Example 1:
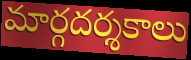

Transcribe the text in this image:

మార్గదర్శకాలు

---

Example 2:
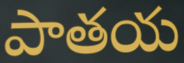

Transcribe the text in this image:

పాతయ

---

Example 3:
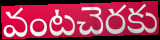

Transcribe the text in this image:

వంటచెరకు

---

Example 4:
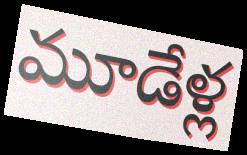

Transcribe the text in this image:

మూడేళ్ల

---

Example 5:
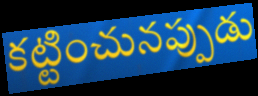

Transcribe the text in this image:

కట్టించునప్పుడు